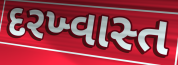
દરખ્વાસ્ત